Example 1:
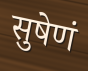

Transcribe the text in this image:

सुषेणं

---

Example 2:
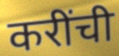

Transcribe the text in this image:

करींची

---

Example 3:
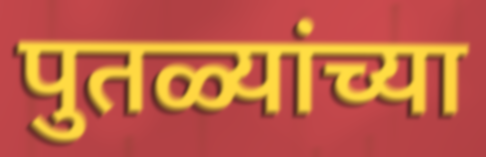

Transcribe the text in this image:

पुतळ्यांच्या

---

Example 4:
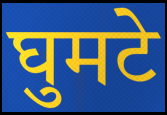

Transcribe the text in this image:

घुमटे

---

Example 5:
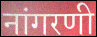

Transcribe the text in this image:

नांगरणी